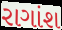
રાગાંશ